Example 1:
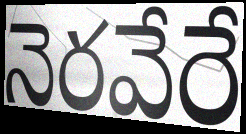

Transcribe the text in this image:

నెరవేరే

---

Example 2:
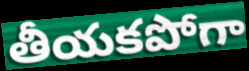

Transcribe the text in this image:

తీయకపోగా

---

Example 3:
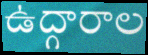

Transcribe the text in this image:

ఉద్గారాల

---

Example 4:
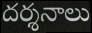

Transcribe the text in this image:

దర్శనాలు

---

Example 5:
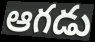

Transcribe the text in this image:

ఆగడు